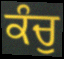
ਕੰਚੁ